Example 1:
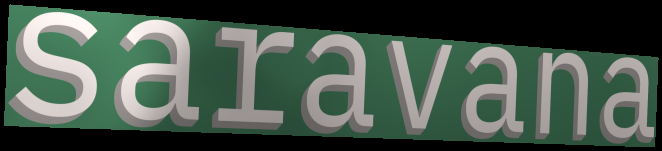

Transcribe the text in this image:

saravana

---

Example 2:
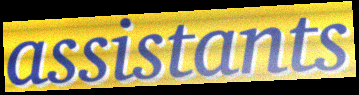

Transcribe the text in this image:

assistants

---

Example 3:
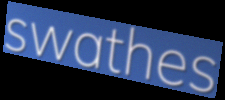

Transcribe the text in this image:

swathes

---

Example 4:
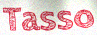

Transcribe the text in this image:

Tasso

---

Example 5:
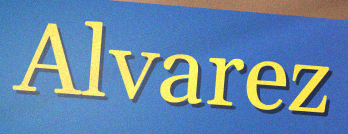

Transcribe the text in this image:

Alvarez